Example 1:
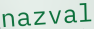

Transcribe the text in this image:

nazval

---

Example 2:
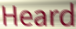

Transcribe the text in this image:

Heard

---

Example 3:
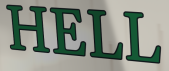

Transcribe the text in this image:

HELL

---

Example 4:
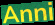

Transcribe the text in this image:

Anni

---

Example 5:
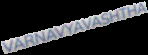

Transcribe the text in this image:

VARNAVYAVASHTHA